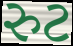
રુટ